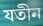
যতীন